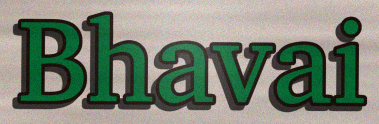
Bhavai